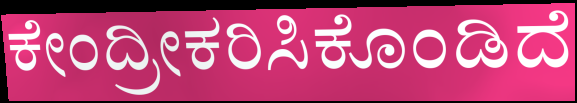
ಕೇಂದ್ರೀಕರಿಸಿಕೊಂಡಿದೆ